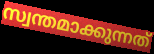
സ്വന്തമാക്കുന്നത്